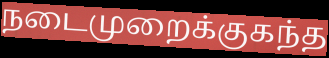
நடைமுறைக்குகந்த